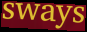
sways